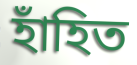
হাঁহিত